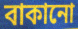
বাকানো